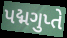
પદ્મગુપ્તે